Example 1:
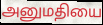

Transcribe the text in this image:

அனுமதியை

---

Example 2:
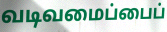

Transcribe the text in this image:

வடிவமைப்பைப்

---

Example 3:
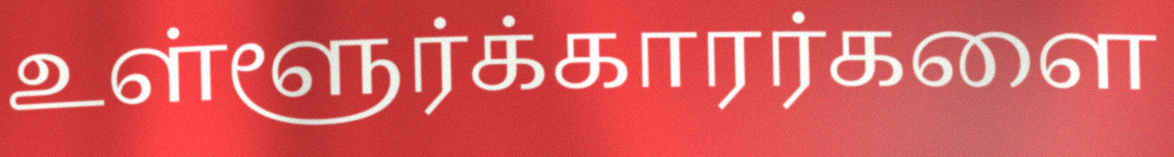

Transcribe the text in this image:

உள்ளூர்க்காரர்களை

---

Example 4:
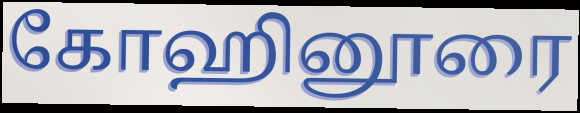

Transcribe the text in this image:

கோஹினூரை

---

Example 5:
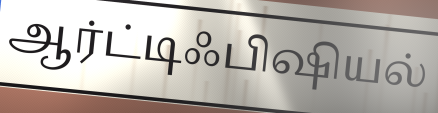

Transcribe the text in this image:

ஆர்ட்டிஃபிஷியல்